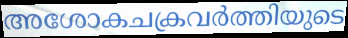
അശോകചക്രവർത്തിയുടെ